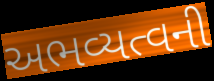
અભવ્યત્વની